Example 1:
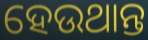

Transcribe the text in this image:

ହେଉଥାନ୍ତ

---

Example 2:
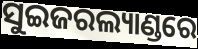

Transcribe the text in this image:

ସୁଇଜରଲ୍ୟାଣ୍ଡରେ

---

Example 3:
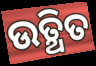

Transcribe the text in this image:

ଉତ୍ଥିତ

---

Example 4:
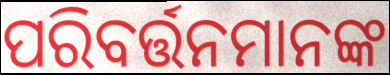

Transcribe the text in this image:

ପରିବର୍ତ୍ତନମାନଙ୍କ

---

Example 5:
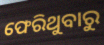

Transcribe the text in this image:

ଫେରିଥୁବାରୁ